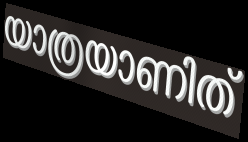
യാത്രയാണിത്